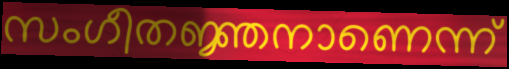
സംഗീതജ്ഞനാണെന്ന്